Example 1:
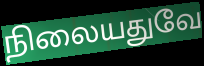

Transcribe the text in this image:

நிலையதுவே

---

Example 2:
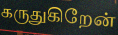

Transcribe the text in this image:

கருதுகிறேன்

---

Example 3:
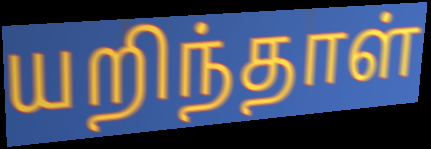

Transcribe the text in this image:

யறிந்தாள்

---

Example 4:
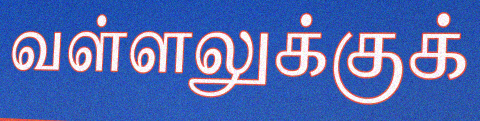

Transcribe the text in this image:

வள்ளலுக்குக்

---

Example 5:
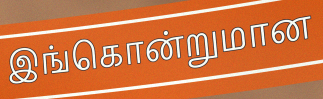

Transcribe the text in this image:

இங்கொன்றுமான